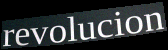
revolucion